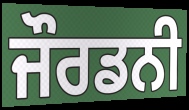
ਜੌਰਡਨੀ